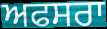
ਅਫਸਰਾ